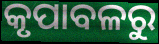
କୃପାବଳରୁ